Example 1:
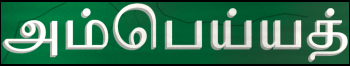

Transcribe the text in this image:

அம்பெய்யத்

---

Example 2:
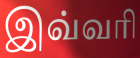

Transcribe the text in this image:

இவ்வரி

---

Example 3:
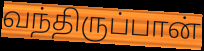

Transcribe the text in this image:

வந்திருப்பான்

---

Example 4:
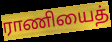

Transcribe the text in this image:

ராணியைத்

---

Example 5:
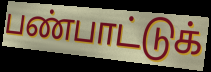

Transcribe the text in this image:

பண்பாட்டுக்